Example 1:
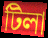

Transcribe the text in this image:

টিলা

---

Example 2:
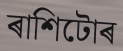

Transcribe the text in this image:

ৰাশিটোৰ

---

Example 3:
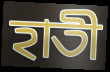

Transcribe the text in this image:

হাতী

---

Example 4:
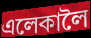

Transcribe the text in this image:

এলেকালৈ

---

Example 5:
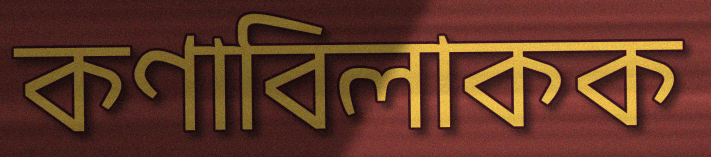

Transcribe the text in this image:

কণাবিলাকক